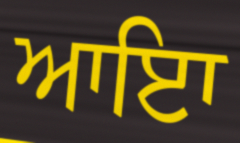
ਆਇਾ